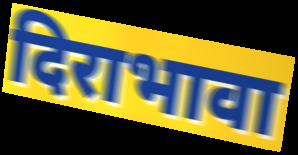
दिराभावा